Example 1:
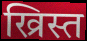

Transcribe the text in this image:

ख्रिस्त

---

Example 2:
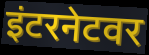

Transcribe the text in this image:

इंटरनेटवर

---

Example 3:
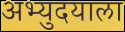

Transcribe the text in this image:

अभ्युदयाला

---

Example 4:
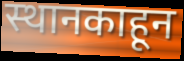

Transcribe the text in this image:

स्थानकाहून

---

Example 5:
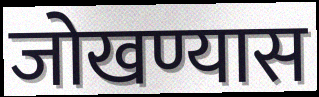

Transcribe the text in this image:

जोखण्यास